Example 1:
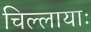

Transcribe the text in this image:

चिल्लायाः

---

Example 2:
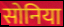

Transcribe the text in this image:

सोनिया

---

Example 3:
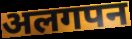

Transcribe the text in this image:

अलगपन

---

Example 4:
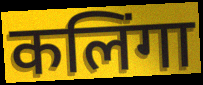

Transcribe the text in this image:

कलिंगा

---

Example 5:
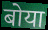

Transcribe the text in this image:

बोया